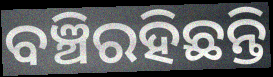
ବଞ୍ଚିରହିଛନ୍ତି